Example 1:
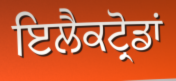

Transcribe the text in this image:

ਇਲੈਕਟ੍ਰੋਡਾਂ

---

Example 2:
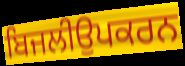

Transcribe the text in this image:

ਬਿਜਲੀਉਪਕਰਨ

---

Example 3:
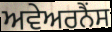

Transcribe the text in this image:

ਅਵੇਅਰਨੈਂਸ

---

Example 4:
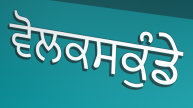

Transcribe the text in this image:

ਵੋਲਕਸਕੁੰਡੇ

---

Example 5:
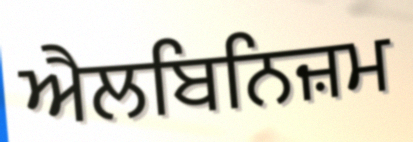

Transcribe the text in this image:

ਐਲਬਿਨਿਜ਼ਮ